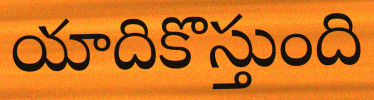
యాదికొస్తుంది